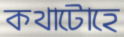
কথাটোহে